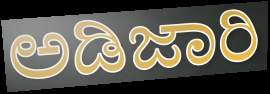
ಅಡಿಜಾರಿ